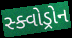
સ્ક્વોડ્રોન